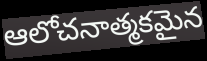
ఆలోచనాత్మకమైన